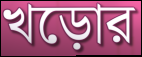
খড়োর